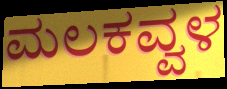
ಮಲಕವ್ವಳ